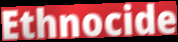
Ethnocide